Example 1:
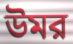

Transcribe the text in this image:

উমর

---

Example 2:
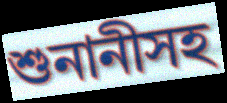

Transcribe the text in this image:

শুনানীসহ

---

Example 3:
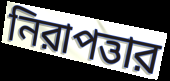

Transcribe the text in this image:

নিরাপত্তার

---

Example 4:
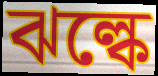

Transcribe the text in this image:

ঝল্কে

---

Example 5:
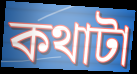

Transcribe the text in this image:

কথাটা